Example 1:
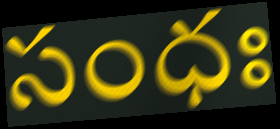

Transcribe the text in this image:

సంధః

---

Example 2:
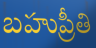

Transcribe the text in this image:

బహుప్రీతి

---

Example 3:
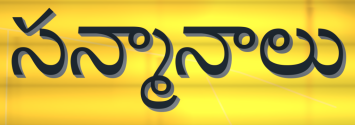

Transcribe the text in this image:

సన్మానాలు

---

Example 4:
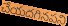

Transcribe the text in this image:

చేయదగినపని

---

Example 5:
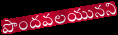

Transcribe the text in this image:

పొందవలయునని